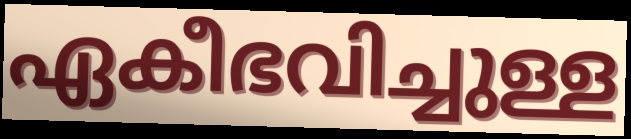
ഏകീഭവിച്ചുള്ള